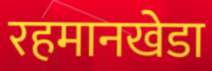
रहमानखेडा